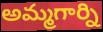
అమ్మగార్ని